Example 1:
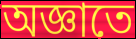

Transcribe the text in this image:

অজ্ঞাতে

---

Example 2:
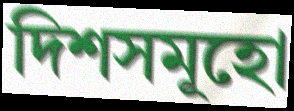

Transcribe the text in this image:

দিশসমূহো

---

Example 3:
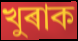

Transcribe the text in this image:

খুৰাক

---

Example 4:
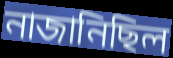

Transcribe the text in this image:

নাজানিছিল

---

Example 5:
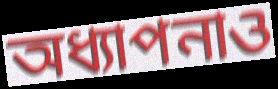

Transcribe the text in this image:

অধ্যাপনাও